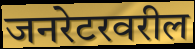
जनरेटरवरील